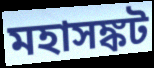
মহাসঙ্কট